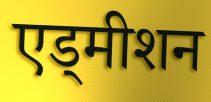
एड्मीशन